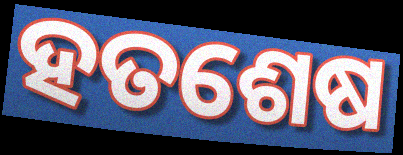
ହତଶେଷ